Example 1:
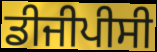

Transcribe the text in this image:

ਡੀਜੀਪੀਸੀ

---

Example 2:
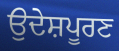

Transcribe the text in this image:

ਉਦੇਸ਼ਪੂਰਣ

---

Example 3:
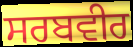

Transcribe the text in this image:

ਸਰਬਵੀਰ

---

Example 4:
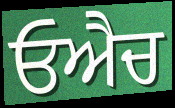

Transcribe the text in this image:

ਓਐਚ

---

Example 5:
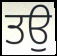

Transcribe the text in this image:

ਤਉ